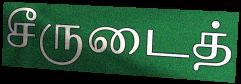
சீருடைத்